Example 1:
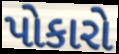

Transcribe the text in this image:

પોકારો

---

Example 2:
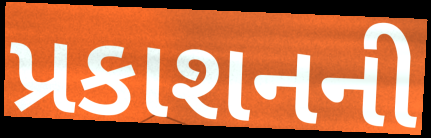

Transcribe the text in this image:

પ્રકાશનની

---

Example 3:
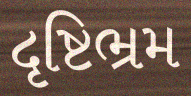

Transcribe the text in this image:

દૃષ્ટિભ્રમ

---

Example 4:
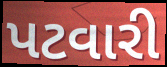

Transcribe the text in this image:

પટવારી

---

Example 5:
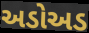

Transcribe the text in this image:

અડોઅડ